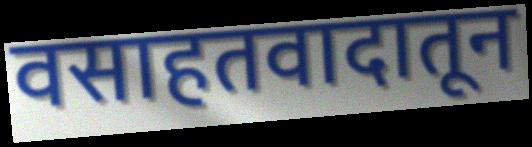
वसाहतवादातून